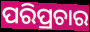
ପରିପ୍ରଚାର